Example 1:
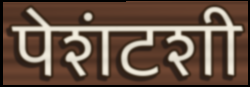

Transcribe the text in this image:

पेशंटशी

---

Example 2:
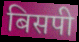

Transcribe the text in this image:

बिसपी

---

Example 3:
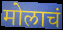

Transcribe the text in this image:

मोलाचं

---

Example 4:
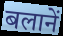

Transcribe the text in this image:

बलानें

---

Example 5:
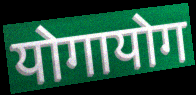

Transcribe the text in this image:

योगायोग